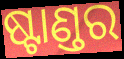
ଷ୍ଟାଣ୍ଡର